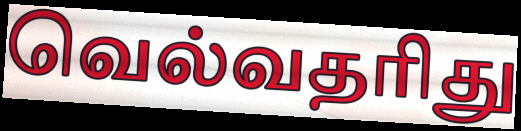
வெல்வதரிது